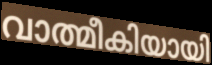
വാത്മീകിയായി